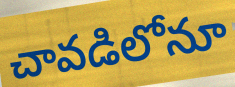
చావడిలోనూ